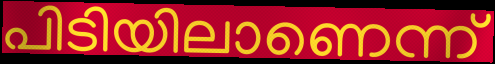
പിടിയിലാണെന്ന്